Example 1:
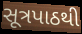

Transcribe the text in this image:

સૂત્રપાઠથી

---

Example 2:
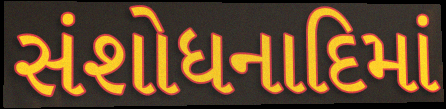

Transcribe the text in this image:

સંશોધનાદિમાં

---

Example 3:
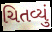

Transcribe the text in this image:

ચિતવ્યું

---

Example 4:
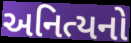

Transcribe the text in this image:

અનિત્યનો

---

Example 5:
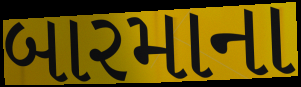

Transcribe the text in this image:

બારમાના